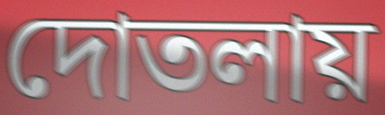
দোতলায়